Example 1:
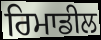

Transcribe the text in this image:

ਰਿਮਾਡੀਲ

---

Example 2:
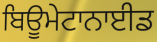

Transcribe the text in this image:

ਬਿਊਮੇਟਾਨਾਈਡ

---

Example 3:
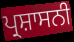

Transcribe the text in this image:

ਪ੍ਰਸ਼ਾਸਨੀ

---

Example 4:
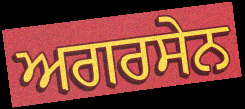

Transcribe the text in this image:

ਅਗਰਸੇਨ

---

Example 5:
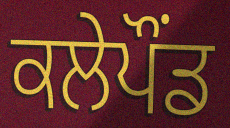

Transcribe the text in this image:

ਕਲੇਪੌਂਡ